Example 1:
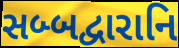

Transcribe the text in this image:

સબ્બદ્વારાનિ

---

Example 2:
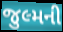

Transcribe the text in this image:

જુલ્મની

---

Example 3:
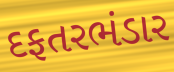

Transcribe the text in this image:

દફતરભંડાર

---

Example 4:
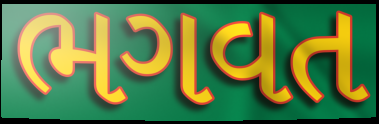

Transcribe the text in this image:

ભગવત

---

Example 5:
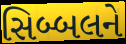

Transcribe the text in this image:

સિબ્બલને